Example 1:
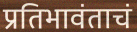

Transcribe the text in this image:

प्रतिभावंताचं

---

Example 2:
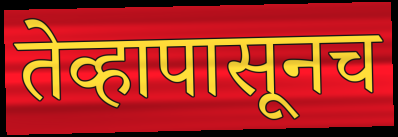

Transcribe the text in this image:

तेव्हापासूनच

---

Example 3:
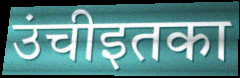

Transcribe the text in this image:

उंचीइतका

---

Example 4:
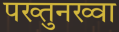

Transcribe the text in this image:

पख्तुनख्वा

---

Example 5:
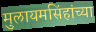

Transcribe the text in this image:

मुलायमसिंहांच्या